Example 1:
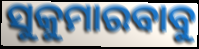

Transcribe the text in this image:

ସୁକୁମାରବାବୁ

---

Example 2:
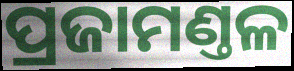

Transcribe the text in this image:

ପ୍ରଜାମଣ୍ତଳ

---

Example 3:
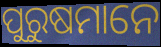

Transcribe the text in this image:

ପୁରୁଷମାନେ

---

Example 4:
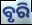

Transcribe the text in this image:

ବୃରି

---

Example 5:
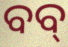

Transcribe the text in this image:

ବବ୍